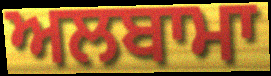
ਅਲਬਾਮਾ